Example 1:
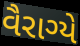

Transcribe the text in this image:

વૈરાગ્યે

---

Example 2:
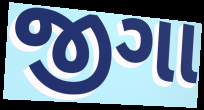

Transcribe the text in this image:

જીગા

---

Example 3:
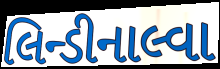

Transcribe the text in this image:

લિન્ડીનાલ્વા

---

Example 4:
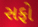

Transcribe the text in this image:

સફો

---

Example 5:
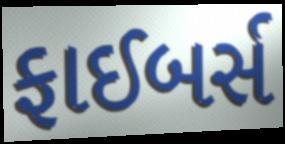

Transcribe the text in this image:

ફાઈબર્સ